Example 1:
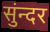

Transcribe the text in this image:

सुंन्दर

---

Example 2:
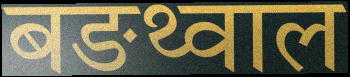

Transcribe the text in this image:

बङथ्वाल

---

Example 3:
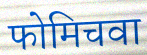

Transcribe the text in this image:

फोमिचवा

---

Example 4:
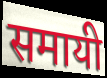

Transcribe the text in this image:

समायी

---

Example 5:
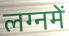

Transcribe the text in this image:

लग्नमें